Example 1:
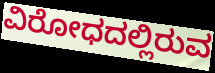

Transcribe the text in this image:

ವಿರೋಧದಲ್ಲಿರುವ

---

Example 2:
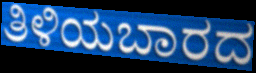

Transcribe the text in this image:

ತಿಳಿಯಬಾರದ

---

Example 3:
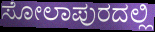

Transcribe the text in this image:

ಸೋಲಾಪುರದಲ್ಲಿ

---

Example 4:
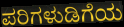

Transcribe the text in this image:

ಪರಿಗಳುಡಿಗೆಯ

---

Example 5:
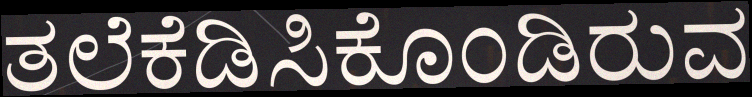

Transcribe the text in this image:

ತಲೆಕೆಡಿಸಿಕೊಂಡಿರುವ